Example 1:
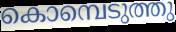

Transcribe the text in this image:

കൊമ്പെടുത്തു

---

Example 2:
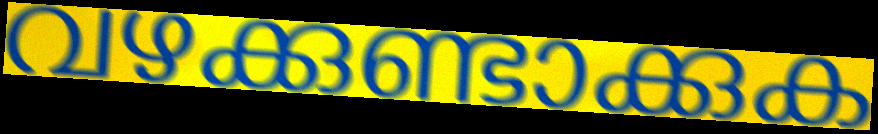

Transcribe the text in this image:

വഴക്കുണ്ടാക്കുക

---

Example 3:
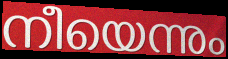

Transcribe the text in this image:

നീയെന്നും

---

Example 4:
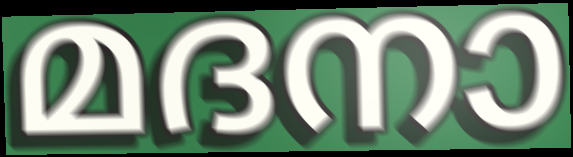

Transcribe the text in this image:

മദനാ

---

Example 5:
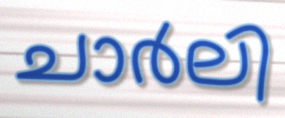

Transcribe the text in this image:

ചാർലി